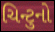
ચિન્ટુનો